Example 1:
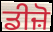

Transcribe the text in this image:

ਡੀਜ਼ੋ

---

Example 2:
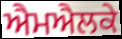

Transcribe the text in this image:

ਐਮਐਲਕੇ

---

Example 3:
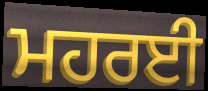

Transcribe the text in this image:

ਮਹਰਈ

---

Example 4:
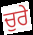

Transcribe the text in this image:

ਚੁਰੇ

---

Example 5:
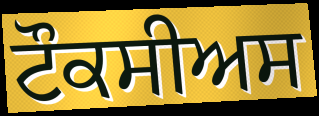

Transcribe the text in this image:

ਟੌਕਸੀਅਸ